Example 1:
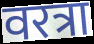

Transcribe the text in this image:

वरत्रा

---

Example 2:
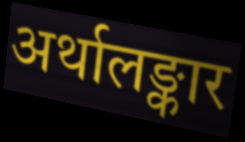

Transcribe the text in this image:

अर्थालङ्कार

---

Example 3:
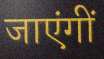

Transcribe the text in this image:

जाएंगीं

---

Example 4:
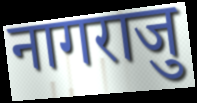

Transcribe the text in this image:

नागराजु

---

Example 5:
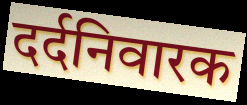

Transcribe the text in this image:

दर्दनिवारक